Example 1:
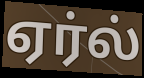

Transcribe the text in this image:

ஏர்ல்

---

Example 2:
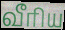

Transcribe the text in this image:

வீரிய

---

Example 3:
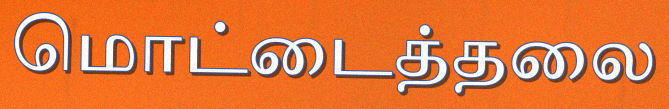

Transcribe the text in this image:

மொட்டைத்தலை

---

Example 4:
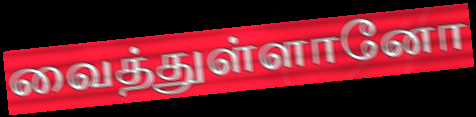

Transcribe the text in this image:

வைத்துள்ளானோ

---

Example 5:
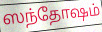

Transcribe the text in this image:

ஸந்தோஷம்